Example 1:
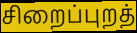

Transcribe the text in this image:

சிறைப்புறத்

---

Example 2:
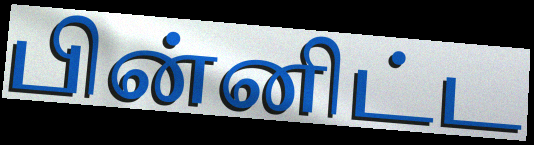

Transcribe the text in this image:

பின்னிட்ட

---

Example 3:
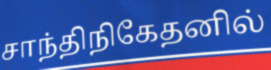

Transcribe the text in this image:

சாந்திநிகேதனில்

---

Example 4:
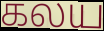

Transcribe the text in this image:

கலய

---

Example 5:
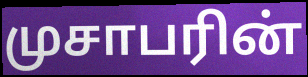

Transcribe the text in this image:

முசாபரின்